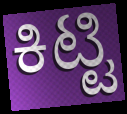
ಕಿಟ್ಟಿ